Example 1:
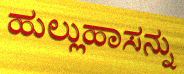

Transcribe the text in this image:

ಹುಲ್ಲುಹಾಸನ್ನು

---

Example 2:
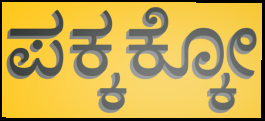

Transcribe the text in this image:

ಪಕ್ಕಕ್ಕೋ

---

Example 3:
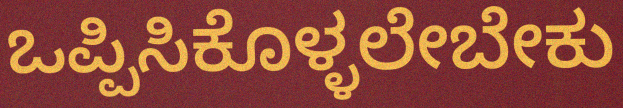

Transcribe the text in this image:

ಒಪ್ಪಿಸಿಕೊಳ್ಳಲೇಬೇಕು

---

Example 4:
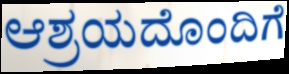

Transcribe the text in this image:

ಆಶ್ರಯದೊಂದಿಗೆ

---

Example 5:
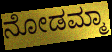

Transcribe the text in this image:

ನೋಡಮ್ಮಾ